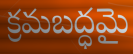
క్రమబద్ధమై